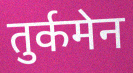
तुर्कमेन